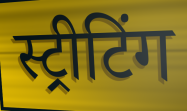
स्ट्रीटिंग